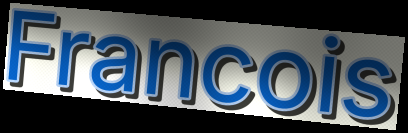
Francois